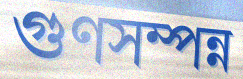
গুণসম্পন্ন